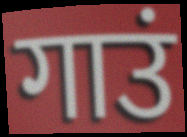
गाउं